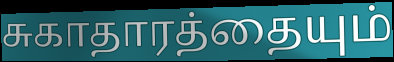
சுகாதாரத்தையும்